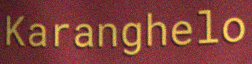
Karanghelo